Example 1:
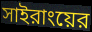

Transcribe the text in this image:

সাইরাংয়ের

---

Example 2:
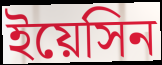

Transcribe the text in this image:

ইয়েসিন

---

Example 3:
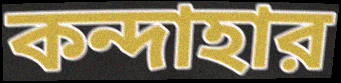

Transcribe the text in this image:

কন্দাহার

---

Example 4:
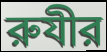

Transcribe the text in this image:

রুযীর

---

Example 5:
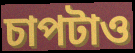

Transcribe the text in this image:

চাপটাও